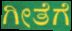
ಗೀತೆಗೆ